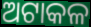
ଅଟାକଳ